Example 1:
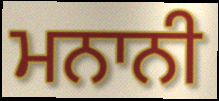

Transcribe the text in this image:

ਮਨਾਨੀ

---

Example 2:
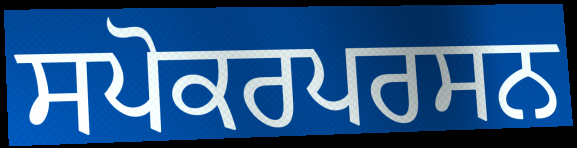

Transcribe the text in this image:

ਸਪੋਕਰਪਰਸਨ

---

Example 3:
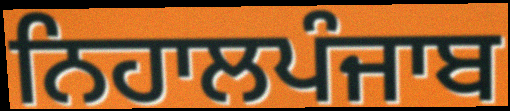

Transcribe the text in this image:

ਨਿਹਾਲਪੰਜਾਬ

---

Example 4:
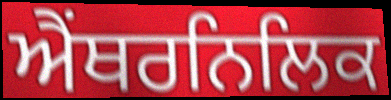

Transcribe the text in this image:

ਐਂਥਰਨਿਲਿਕ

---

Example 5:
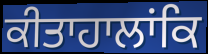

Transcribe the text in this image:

ਕੀਤਾਹਾਲਾਂਕਿ